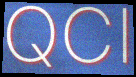
QCI